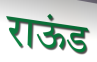
राऊंड